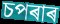
চপৰাৰ